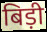
बिड़ी